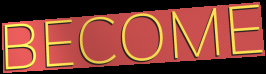
BECOME